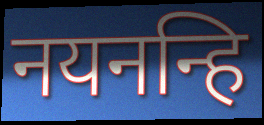
नयनन्हि